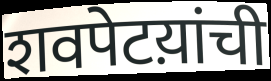
शवपेटय़ांची